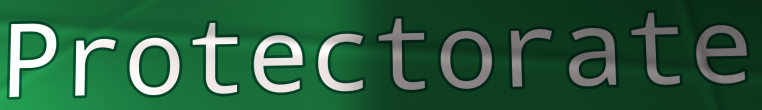
Protectorate